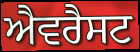
ਐਵਰੈਸਟ